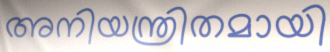
അനിയന്ത്രിതമായി